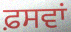
ਫ਼ਸਵਾਂ